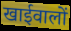
खाईवालों